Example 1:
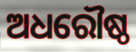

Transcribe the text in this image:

ଅଧରୌଷ୍ଠ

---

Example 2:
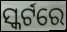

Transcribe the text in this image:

ସ୍କର୍ଟରେ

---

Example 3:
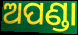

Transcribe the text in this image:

ଅପଣ୍ଡା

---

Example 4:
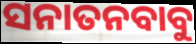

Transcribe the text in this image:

ସନାତନବାବୁ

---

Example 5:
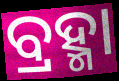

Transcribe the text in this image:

ବ୍ରହ୍ମା